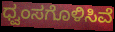
ಧ್ವಂಸಗೊಳಿಸಿವೆ